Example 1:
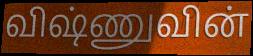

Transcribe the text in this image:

விஷ்ணுவின்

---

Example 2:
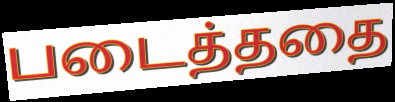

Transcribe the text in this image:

படைத்ததை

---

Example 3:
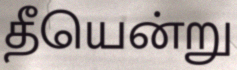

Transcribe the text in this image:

தீயென்று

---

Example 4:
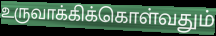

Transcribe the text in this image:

உருவாக்கிக்கொள்வதும்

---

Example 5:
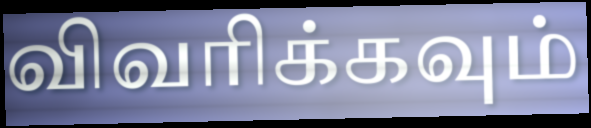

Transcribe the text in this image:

விவரிக்கவும்